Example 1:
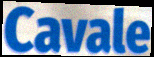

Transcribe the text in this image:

Cavale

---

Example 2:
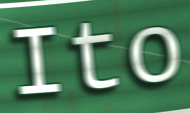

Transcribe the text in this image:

Ito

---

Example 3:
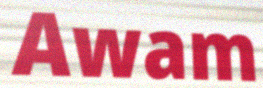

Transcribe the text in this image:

Awam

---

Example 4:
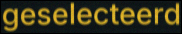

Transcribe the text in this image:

geselecteerd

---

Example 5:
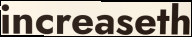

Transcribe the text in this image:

increaseth